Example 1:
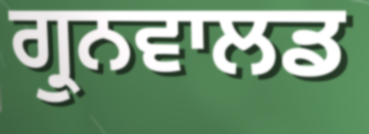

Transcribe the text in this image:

ਗ੍ਰੁਨਵਾਲਡ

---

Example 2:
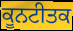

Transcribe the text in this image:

ਕੂਨਟੀਤਕ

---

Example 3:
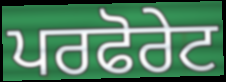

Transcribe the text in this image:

ਪਰਫੋਰੇਟ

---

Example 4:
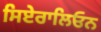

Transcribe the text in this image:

ਸਿਏਰਾਲਿਓਨ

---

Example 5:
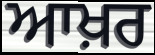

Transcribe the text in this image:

ਆਖ਼ਰ